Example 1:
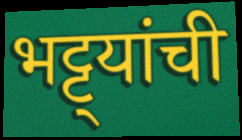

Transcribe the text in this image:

भट्ट्यांची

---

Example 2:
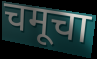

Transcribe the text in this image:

चमूचा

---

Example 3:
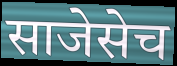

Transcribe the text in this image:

साजेसेच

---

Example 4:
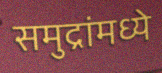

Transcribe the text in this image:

समुद्रांमध्ये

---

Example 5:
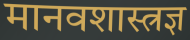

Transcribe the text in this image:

मानवशास्त्रज्ञ